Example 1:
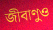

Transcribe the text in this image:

জীবাণুও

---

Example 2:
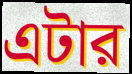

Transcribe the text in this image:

এটার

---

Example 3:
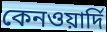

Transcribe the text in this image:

কেনওয়ার্দি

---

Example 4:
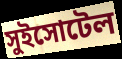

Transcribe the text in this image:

সুইসোটেল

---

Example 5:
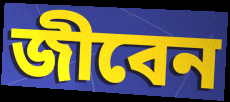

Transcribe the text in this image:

জীবেন